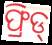
ଫ୍ରିଡ୍